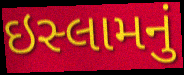
ઇસ્લામનું